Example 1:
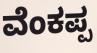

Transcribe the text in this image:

ವೆಂಕಪ್ಪ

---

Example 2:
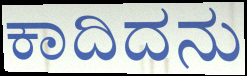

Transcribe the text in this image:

ಕಾದಿದನು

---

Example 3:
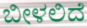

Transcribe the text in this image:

ಬೀಳಲಿದೆ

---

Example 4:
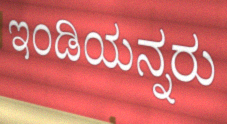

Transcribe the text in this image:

ಇಂಡಿಯನ್ನರು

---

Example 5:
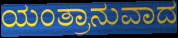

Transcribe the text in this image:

ಯಂತ್ರಾನುವಾದ